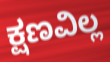
ಕ್ಷಣವಿಲ್ಲ